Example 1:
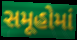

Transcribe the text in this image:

સમૂહોમાં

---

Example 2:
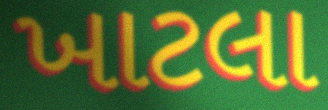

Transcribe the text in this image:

ખાટલા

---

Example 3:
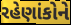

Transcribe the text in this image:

રહેણાંકોને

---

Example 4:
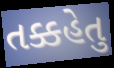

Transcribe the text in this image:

તક્કહેતુ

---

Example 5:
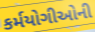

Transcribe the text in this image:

કર્મયોગીઓની